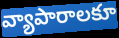
వ్యాపారాలకూ